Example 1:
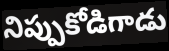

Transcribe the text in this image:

నిప్పుకోడిగాడు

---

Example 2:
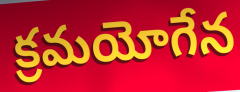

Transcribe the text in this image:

క్రమయోగేన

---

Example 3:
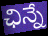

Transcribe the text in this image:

ఛిన్నే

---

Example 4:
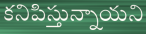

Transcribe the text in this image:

కనిపిస్తున్నాయని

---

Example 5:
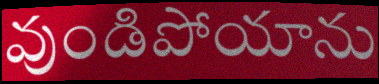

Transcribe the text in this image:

వుండిపోయాను